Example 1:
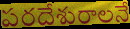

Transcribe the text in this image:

పరదేశురాలనే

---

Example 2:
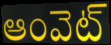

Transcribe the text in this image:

ఆంవెట్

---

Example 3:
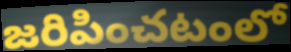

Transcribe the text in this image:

జరిపించటంలో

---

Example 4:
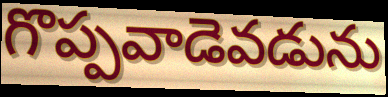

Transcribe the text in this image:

గొప్పవాడెవడును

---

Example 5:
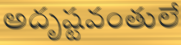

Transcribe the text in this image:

అదృష్టవంతులే